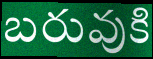
బరువుకి